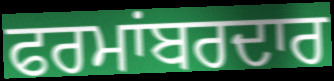
ਫਰਮਾਂਬਰਦਾਰ